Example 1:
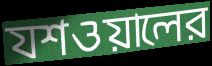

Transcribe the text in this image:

যশওয়ালের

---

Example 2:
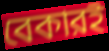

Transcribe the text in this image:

বেকারই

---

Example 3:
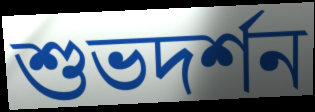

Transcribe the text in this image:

শুভদর্শন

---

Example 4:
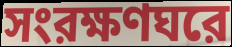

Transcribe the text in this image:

সংরক্ষণঘরে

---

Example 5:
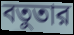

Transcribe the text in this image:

বতুতার